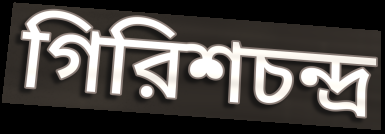
গিরিশচন্দ্র